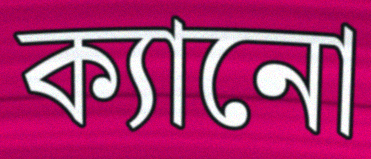
ক্যানো